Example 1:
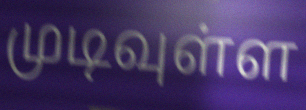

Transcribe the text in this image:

முடிவுள்ள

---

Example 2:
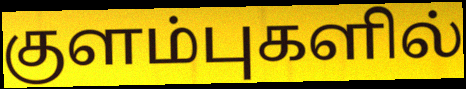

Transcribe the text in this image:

குளம்புகளில்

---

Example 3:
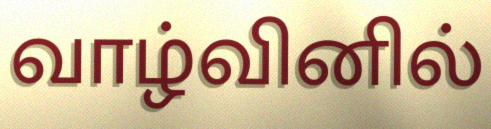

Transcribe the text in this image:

வாழ்வினில்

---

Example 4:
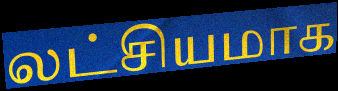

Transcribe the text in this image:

லட்சியமாக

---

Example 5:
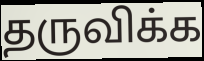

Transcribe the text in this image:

தருவிக்க